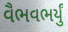
વૈભવભર્યું